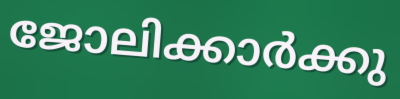
ജോലിക്കാർക്കു